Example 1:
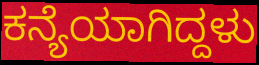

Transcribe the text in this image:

ಕನ್ಯೆಯಾಗಿದ್ದಳು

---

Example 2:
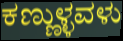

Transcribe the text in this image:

ಕಣ್ಣುಳ್ಳವಳು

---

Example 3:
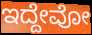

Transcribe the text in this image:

ಇದ್ದೇವೋ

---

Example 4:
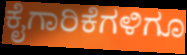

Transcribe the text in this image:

ಕೈಗಾರಿಕೆಗಳಿಗೂ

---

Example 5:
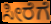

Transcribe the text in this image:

ಸೀರೆಗೆ